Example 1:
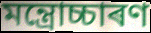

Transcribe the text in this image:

মন্ত্ৰোচ্চাৰণ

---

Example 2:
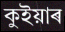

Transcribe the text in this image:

কুইয়াৰ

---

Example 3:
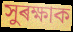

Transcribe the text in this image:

সুৰক্ষাক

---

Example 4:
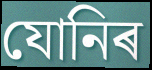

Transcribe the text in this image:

যোনিৰ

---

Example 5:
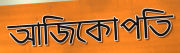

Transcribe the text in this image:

আজিকোপতি